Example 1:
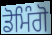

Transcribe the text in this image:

ਡੋਮਿੰਗੋ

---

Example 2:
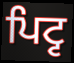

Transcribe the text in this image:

ਪਿਟ੍ਟ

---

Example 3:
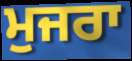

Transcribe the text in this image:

ਮੁਜਰਾ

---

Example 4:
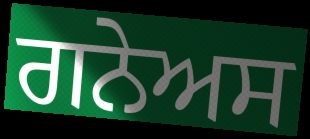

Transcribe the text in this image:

ਗਨੇਅਸ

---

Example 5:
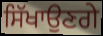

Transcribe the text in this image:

ਸਿੱਖਾਉਣਗੇ